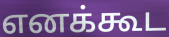
எனக்கூட